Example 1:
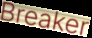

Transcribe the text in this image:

Breaker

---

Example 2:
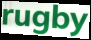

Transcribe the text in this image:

rugby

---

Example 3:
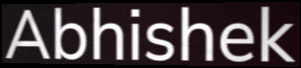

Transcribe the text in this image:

Abhishek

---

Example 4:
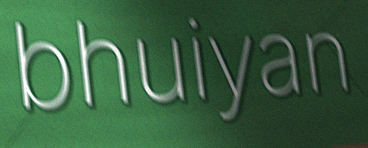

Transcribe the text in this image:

bhuiyan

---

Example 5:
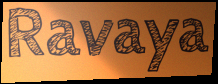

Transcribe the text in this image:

Ravaya